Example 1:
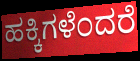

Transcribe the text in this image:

ಹಕ್ಕಿಗಳೆಂದರೆ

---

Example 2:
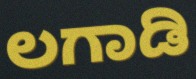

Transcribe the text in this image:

ಲಗಾಡಿ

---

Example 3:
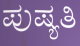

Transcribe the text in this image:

ಪುಷ್ಯತಿ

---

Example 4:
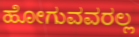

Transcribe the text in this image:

ಹೋಗುವವರಲ್ಲ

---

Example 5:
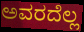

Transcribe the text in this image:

ಅವರದೆಲ್ಲ